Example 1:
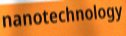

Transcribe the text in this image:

nanotechnology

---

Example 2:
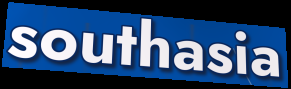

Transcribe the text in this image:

southasia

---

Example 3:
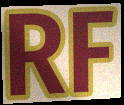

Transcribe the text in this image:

RF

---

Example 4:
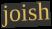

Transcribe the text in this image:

joish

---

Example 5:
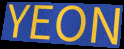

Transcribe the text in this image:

YEON